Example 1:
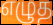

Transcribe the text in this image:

எழுத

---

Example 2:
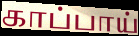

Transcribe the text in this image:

காப்பாய்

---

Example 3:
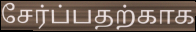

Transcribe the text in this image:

சேர்ப்பதற்காக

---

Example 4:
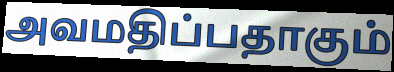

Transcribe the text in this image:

அவமதிப்பதாகும்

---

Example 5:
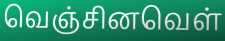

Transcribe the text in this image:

வெஞ்சினவெள்